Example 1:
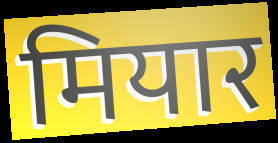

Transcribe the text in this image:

मियार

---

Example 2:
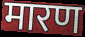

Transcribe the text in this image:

मारण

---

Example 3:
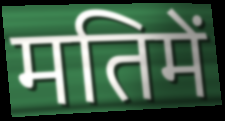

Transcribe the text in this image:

मतिमें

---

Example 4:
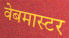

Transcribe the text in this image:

वेबमास्टर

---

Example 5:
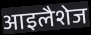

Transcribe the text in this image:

आइलैशेज